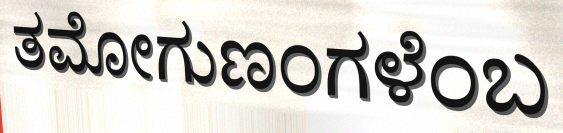
ತಮೋಗುಣಂಗಳೆಂಬ